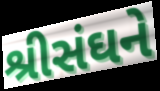
શ્રીસંઘને